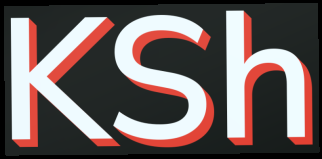
KSh